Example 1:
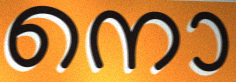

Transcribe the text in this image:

നൊ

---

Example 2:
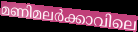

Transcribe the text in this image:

മണിമലർക്കാവിലെ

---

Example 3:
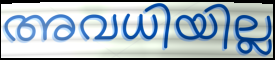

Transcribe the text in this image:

അവധിയില്ല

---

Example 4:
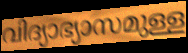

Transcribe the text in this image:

വിദ്യാഭ്യാസമുള്ള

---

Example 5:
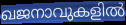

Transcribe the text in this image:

ഖജനാവുകളിൽ